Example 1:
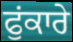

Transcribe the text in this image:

ਫੁਂਕਾਰੇ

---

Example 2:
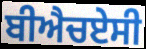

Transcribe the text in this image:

ਬੀਐਚਏਸੀ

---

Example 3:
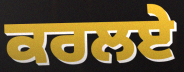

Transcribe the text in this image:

ਕਰਲਏ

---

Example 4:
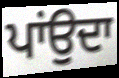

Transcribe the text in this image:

ਪਾਂਉਦਾ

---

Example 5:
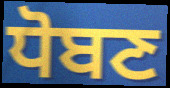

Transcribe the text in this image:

ਧੋਬਣ